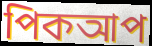
পিকআপ